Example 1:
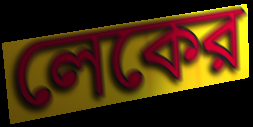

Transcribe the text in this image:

লেকের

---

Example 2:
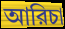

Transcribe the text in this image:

আরিচা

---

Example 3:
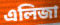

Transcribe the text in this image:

এলিজা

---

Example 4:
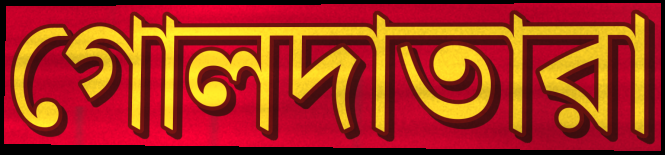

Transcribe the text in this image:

গোলদাতারা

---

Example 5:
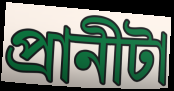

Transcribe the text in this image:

প্রানীটা